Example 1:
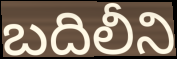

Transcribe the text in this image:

బదిలీని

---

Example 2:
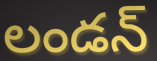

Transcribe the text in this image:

లండన్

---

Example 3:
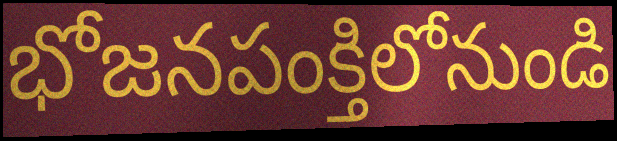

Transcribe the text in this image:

భోజనపంక్తిలోనుండి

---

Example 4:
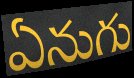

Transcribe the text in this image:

ఏనుగు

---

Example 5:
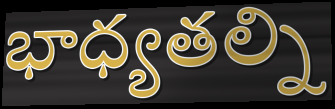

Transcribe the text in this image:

భాధ్యతల్ని